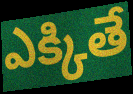
ఎక్కితే